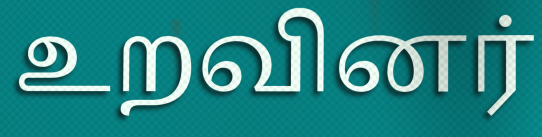
உறவினர்